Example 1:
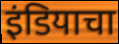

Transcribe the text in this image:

इंडियाचा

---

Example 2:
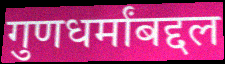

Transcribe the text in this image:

गुणधर्मांबद्दल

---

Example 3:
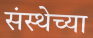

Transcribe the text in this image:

संस्थेच्या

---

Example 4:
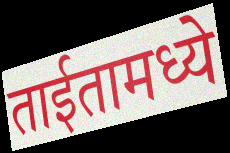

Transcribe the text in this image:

ताईतामध्ये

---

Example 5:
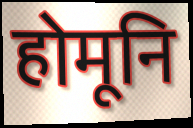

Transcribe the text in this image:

होमूनि